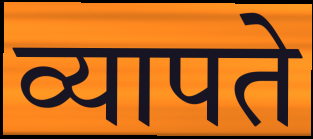
व्यापते